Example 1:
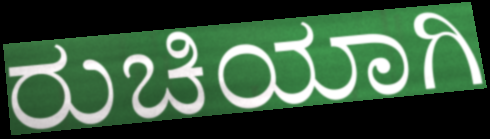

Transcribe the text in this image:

ರುಚಿಯಾಗಿ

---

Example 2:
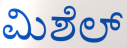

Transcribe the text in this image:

ಮಿಶೆಲ್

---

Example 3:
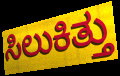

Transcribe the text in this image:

ಸಿಲುಕಿತ್ತು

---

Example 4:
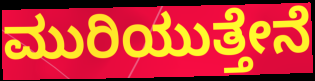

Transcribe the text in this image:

ಮುರಿಯುತ್ತೇನೆ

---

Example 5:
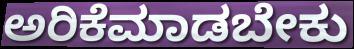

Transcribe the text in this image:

ಅರಿಕೆಮಾಡಬೇಕು